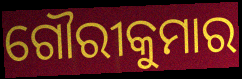
ଗୌରୀକୁମାର